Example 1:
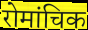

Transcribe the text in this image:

रोमांचिक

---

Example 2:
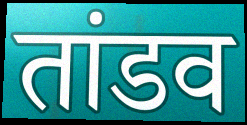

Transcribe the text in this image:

तांडव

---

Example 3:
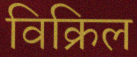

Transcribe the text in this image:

विक्रिल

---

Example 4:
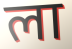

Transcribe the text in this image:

ला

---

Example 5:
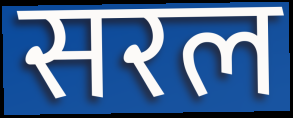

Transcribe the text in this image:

सरल